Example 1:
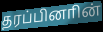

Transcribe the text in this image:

தரப்பினரின்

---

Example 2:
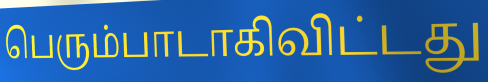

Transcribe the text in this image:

பெரும்பாடாகிவிட்டது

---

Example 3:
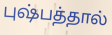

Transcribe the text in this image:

புஷ்பத்தால்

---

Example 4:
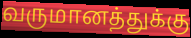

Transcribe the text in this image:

வருமானத்துக்கு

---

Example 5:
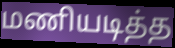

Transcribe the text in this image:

மணியடித்த